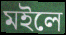
মইলে